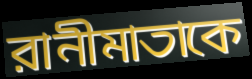
রানীমাতাকে